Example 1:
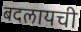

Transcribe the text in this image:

बदलायची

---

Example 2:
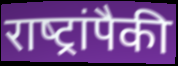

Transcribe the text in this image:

राष्ट्रांपैकी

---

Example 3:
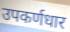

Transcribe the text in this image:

उपकर्णधार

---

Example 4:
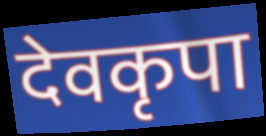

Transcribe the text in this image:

देवकृपा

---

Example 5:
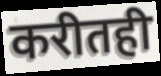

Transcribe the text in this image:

करीतही